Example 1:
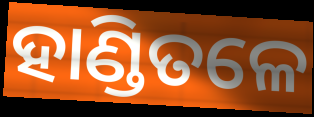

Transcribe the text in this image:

ହାଣ୍ଡିତଳେ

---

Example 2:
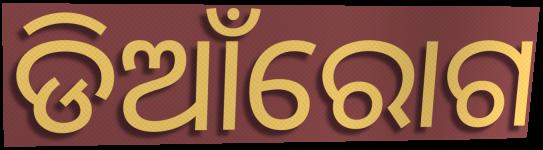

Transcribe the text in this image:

ଡିଆଁରୋଗ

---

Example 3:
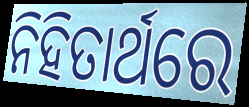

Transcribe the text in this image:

ନିହିତାର୍ଥରେ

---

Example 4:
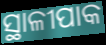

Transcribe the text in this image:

ସ୍ଥାଳୀପାକ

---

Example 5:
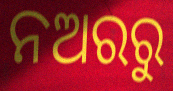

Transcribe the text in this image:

ନଅରରୁ